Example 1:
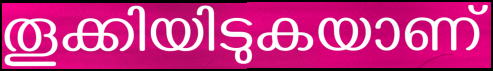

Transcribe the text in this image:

തൂക്കിയിടുകയാണ്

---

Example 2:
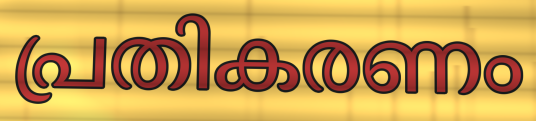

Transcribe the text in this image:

പ്രതികരണം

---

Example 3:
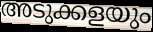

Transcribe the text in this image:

അടുക്കളയും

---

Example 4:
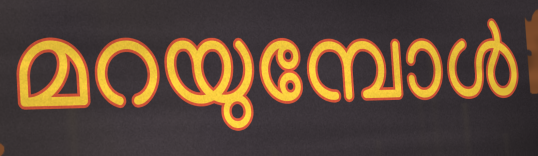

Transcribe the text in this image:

മറയുമ്പോൾ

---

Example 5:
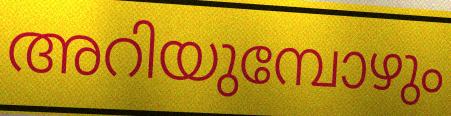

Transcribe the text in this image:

അറിയുമ്പോഴും